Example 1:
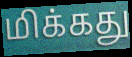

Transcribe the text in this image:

மிக்கது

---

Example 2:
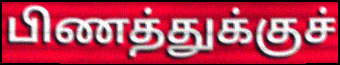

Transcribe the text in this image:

பிணத்துக்குச்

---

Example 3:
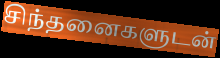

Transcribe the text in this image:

சிந்தனைகளுடன்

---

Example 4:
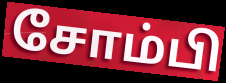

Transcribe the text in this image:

சோம்பி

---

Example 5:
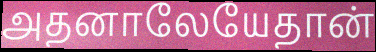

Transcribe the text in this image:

அதனாலேயேதான்